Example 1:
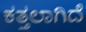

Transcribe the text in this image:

ಕತ್ತಲಾಗಿದೆ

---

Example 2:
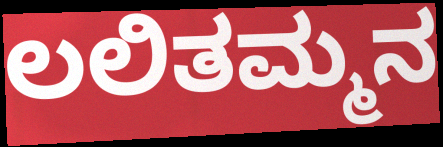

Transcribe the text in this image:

ಲಲಿತಮ್ಮನ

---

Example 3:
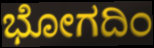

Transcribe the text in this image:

ಭೋಗದಿಂ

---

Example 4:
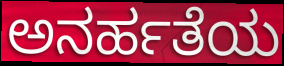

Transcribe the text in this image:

ಅನರ್ಹತೆಯ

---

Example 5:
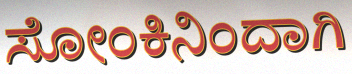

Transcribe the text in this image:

ಸೋಂಕಿನಿಂದಾಗಿ